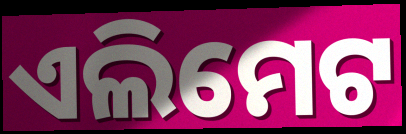
ଏଲିମେଟ